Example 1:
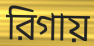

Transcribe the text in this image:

রিগায়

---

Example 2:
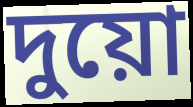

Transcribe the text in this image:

দুয়ো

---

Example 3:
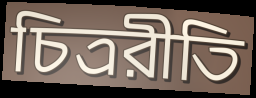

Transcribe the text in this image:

চিত্ররীতি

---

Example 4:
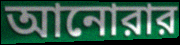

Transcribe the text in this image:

আনোরার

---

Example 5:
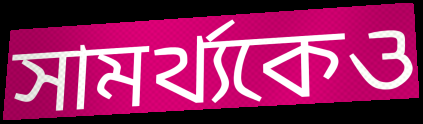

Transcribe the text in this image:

সামর্থ্যকেও